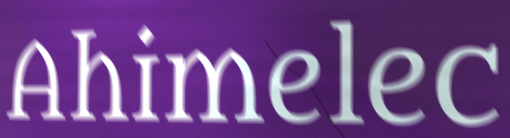
Ahimelec